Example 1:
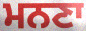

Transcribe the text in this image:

ਮਨਣਾ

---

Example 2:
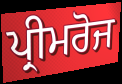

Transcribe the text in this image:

ਪ੍ਰੀਮਰੋਜ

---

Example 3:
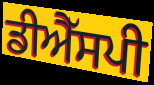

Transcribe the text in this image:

ਡੀਐੱਸਪੀ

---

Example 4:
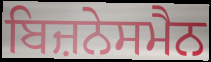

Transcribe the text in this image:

ਬਿਜ਼ਨੇਸਮੈਨ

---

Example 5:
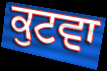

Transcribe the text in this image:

ਕੁਟਵਾ